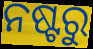
ନଷ୍ଟରୁ